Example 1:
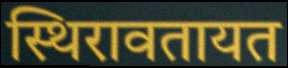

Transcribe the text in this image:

स्थिरावतायत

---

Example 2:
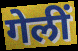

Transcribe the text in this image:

गेलीं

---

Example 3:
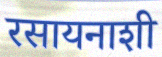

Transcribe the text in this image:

रसायनाशी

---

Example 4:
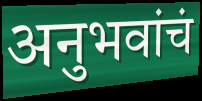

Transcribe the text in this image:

अनुभवांचं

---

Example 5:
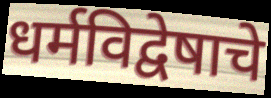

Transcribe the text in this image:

धर्मविद्वेषाचे